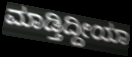
ಮಾಡ್ತಿದ್ದೀಯಾ